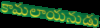
కామలాయనుడు